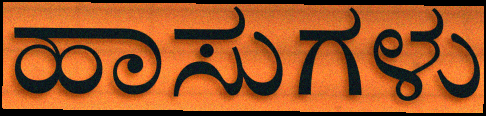
ಹಾಸುಗಳು